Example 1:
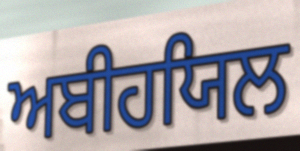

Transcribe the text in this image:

ਅਬੀਹਯਿਲ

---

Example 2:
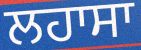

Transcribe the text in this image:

ਲਹਾਸਾ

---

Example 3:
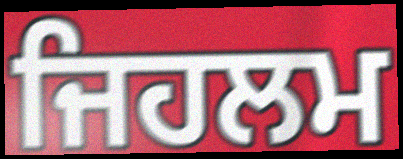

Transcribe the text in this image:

ਜਿਹਲਮ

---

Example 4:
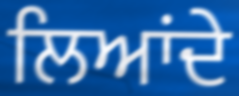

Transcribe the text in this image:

ਲਿਆਂਦੇ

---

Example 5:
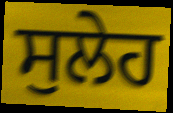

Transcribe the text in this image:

ਸੁਲੇਹ